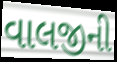
વાલજીની